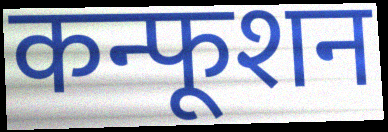
कन्फूशन